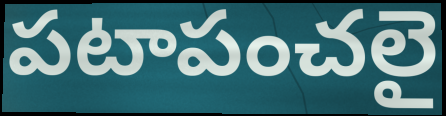
పటాపంచలై